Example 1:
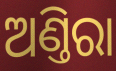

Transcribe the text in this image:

ଅଣ୍ତିରା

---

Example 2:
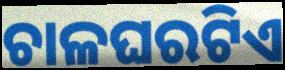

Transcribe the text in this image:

ଚାଳଘରଟିଏ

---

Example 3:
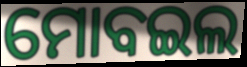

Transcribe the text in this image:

ମୋବଇଲ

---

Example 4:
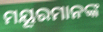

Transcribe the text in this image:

ମୟୂରମାନଙ୍କ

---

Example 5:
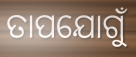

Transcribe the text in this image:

ତାପଯୋଗୁଁ